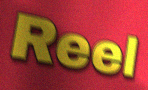
Reel